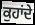
ਕੁਹਾਂਦੇ